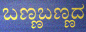
ಬಣ್ಣಬಣ್ಣದ